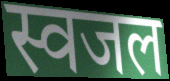
स्वजल